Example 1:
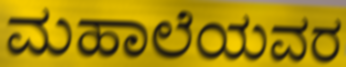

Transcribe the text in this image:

ಮಹಾಲೆಯವರ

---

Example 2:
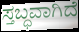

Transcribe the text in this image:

ಸ್ತಬ್ಧವಾಗಿದೆ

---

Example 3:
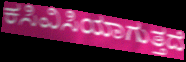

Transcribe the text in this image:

ಕಸಿವಿಸಿಯಾಗುತ್ತದೆ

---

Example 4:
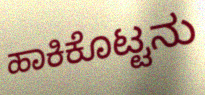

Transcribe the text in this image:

ಹಾಕಿಕೊಟ್ಟನು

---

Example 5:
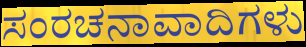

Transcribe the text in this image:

ಸಂರಚನಾವಾದಿಗಳು